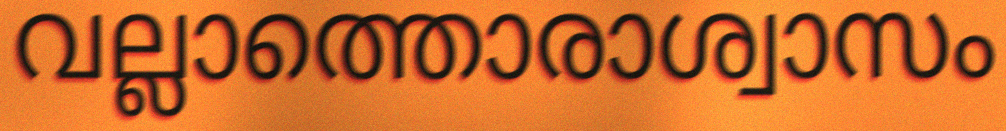
വല്ലാത്തൊരാശ്വാസം